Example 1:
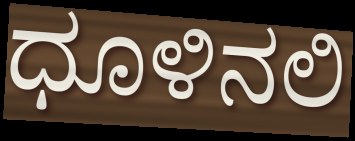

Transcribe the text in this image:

ಧೂಳಿನಲಿ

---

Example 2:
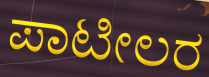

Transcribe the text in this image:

ಪಾಟೀಲರ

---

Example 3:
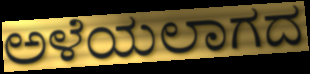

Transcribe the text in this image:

ಅಳೆಯಲಾಗದ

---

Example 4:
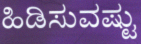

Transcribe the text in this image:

ಹಿಡಿಸುವಷ್ಟು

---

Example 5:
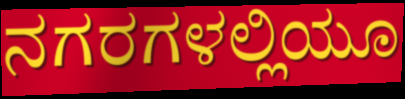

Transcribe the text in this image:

ನಗರಗಳಲ್ಲಿಯೂ